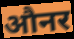
औनर